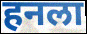
हनला